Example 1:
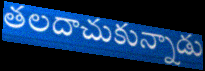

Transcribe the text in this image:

తలదాచుకున్నాడు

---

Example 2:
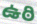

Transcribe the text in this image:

ఉఠి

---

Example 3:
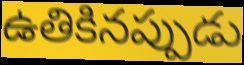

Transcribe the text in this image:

ఉతికినప్పుడు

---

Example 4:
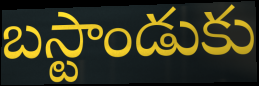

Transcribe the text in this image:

బస్టాండుకు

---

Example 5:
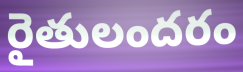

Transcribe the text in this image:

రైతులందరం